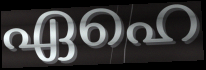
ഏഹെ